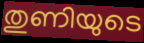
തുണിയുടെ